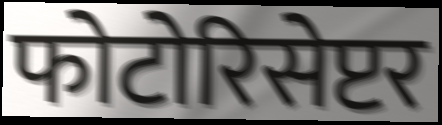
फोटोरिसेप्टर